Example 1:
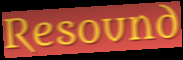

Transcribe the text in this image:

Resound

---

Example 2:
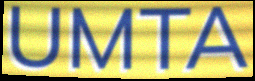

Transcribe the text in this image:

UMTA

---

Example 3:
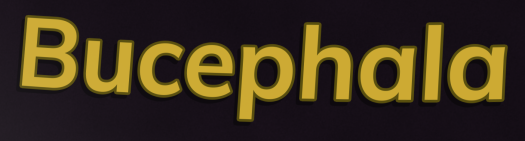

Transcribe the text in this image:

Bucephala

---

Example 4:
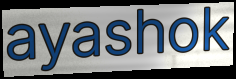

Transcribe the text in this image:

ayashok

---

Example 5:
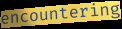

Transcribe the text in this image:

encountering